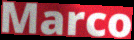
Marco